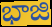
భాజి